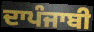
ਦਾਪੰਜਾਬੀ